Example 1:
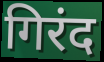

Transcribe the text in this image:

गिरंद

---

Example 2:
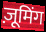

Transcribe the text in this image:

ज़ूमिंग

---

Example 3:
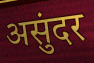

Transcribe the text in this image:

असुंदर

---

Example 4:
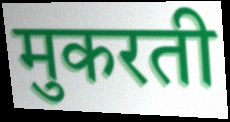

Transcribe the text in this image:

मुकरती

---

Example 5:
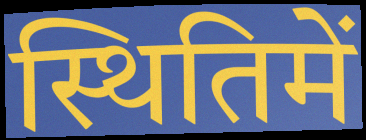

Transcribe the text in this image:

स्थितिमें